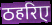
ठहरिए